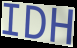
IDH